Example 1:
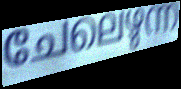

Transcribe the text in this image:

ചേലെഴുന്ന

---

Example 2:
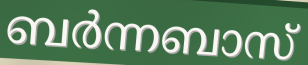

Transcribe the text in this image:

ബർന്നബാസ്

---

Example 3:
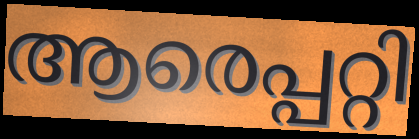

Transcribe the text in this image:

ആരെപ്പറ്റി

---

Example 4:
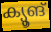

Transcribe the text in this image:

ക്യൂങ്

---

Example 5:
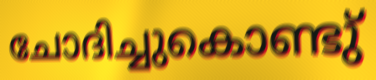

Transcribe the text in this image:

ചോദിച്ചുകൊണ്ടു്